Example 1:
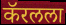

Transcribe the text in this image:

कॅरलला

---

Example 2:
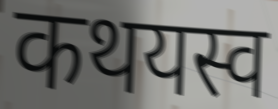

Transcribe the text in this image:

कथयस्व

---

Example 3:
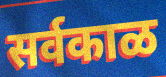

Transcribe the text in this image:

सर्वकाळ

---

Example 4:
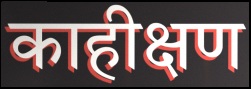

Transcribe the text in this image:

काहीक्षण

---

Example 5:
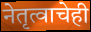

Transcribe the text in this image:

नेतृत्वाचेही